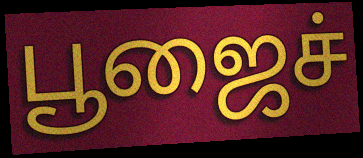
பூஜைச்